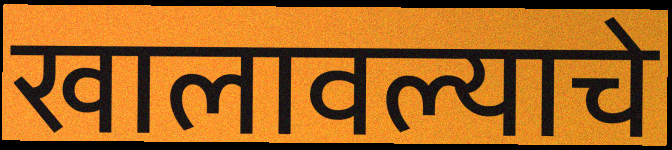
खालावल्याचे